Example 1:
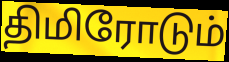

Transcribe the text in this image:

திமிரோடும்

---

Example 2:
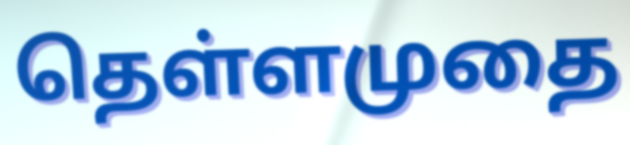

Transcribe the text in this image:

தெள்ளமுதை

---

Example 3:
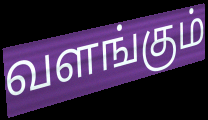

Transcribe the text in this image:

வளங்கும்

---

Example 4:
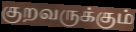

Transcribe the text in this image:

குறவருக்கும்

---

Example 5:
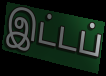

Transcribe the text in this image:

இட்டப்